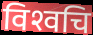
विश्वचि